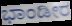
ಭಾಂಡೀರ